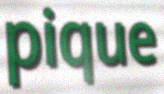
pique